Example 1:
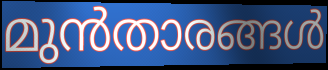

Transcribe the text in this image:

മുൻതാരങ്ങൾ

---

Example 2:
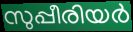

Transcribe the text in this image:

സുപ്പീരിയർ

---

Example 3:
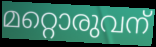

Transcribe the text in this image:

മറ്റൊരുവന്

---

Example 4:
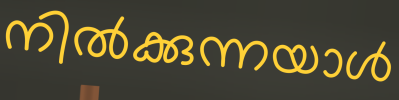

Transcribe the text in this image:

നിൽക്കുന്നയാൾ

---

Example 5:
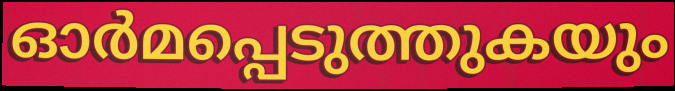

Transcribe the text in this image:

ഓർമപ്പെടുത്തുകയും